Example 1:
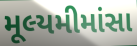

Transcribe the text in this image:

મૂલ્યમીમાંસા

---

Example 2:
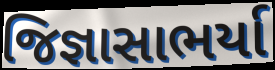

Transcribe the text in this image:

જિજ્ઞાસાભર્યા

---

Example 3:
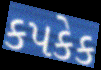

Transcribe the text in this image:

કપકેક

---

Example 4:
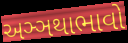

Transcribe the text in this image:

અઞ્ઞથાભાવો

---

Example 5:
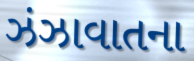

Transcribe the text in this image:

ઝંઝાવાતના